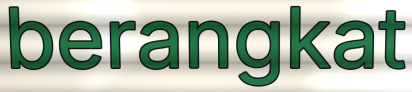
berangkat